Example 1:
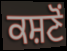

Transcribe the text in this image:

ਕਸ਼ਣੋਂ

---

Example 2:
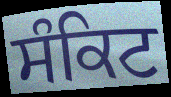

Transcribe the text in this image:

ਸੰਕਿਟ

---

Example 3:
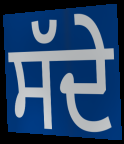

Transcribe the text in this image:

ਸੱਦੇ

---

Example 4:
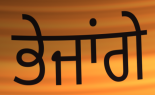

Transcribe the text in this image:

ਭੇਜਾਂਗੇ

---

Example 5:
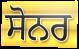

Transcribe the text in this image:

ਸੋਨਰ